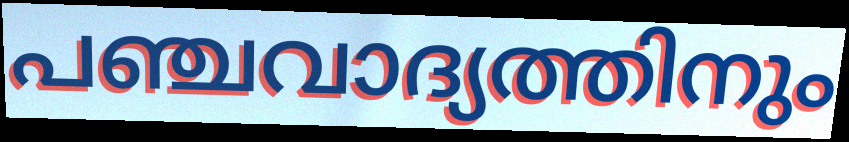
പഞ്ചവാദ്യത്തിനും